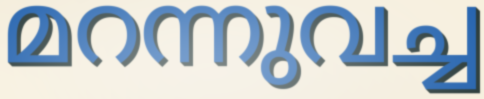
മറന്നുവച്ച